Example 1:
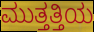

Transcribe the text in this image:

ಮುತ್ತತ್ತಿಯ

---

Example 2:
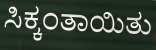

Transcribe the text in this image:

ಸಿಕ್ಕಂತಾಯಿತು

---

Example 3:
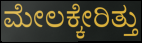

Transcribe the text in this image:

ಮೇಲಕ್ಕೇರಿತ್ತು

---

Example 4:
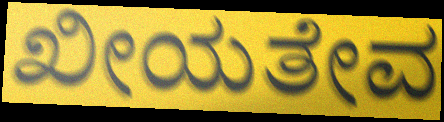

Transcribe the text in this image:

ಖೀಯತೇವ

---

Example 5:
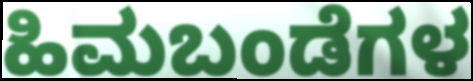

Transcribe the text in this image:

ಹಿಮಬಂಡೆಗಳ